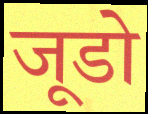
जूडो